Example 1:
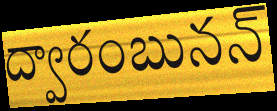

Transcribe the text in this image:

ద్వారంబునన్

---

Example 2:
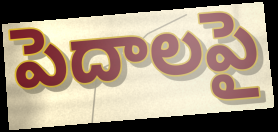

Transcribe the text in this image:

పెదాలపై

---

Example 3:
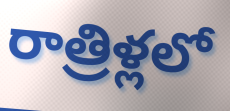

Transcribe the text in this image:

రాత్రిళ్లలో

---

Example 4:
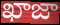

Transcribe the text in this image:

ఖాజా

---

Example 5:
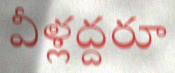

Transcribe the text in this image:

వీళ్లద్దరూ